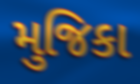
મુજિકા